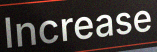
Increase